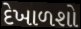
દેખાળશો